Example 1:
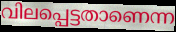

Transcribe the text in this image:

വിലപ്പെട്ടതാണെന്ന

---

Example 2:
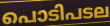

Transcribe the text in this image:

പൊടിപടല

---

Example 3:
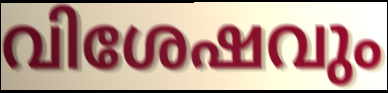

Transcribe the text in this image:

വിശേഷവും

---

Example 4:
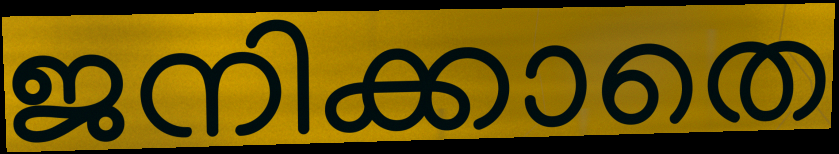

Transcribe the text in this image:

ജനിക്കാതെ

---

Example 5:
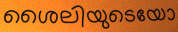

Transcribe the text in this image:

ശൈലിയുടെയോ